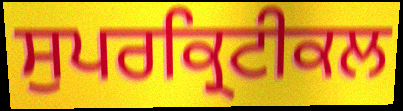
ਸੁਪਰਕ੍ਰਿਟੀਕਲ